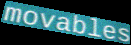
movables